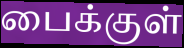
பைக்குள்